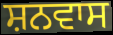
ਸ਼ਨਵਾਸ